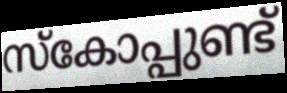
സ്കോപ്പുണ്ട്